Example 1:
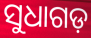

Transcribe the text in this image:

ସୁଧାଗଡ଼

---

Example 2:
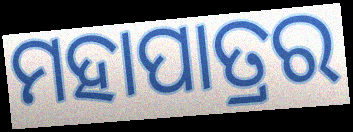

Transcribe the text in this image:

ମହାପାତ୍ରର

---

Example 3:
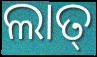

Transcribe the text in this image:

ଲାତ୍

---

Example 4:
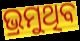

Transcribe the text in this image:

ଭ୍ରମୁଥିବ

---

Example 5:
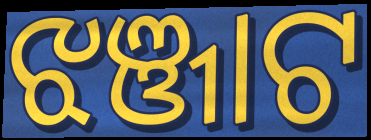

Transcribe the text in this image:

ଝଞ୍ଜାଟ